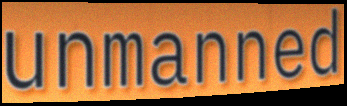
unmanned